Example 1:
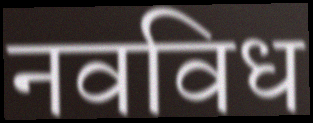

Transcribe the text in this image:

नवविध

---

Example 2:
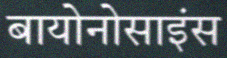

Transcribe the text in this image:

बायोनोसाइंस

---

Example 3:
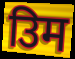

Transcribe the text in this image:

उिम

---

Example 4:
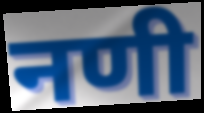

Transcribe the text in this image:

नणी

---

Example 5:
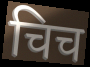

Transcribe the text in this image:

चिच